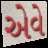
એવે